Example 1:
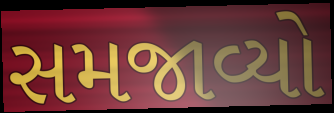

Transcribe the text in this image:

સમજાવ્યો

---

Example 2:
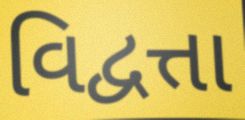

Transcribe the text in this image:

વિદ્વત્તા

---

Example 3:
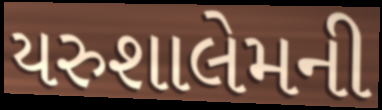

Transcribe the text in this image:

યરુશાલેમની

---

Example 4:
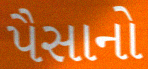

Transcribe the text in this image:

પૈસાનો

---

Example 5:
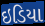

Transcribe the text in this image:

ઇડિયા